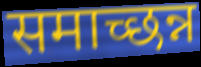
समाच्छन्न